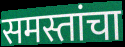
समस्तांचा